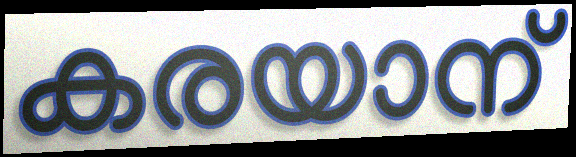
കരയാന്